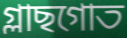
গ্লাছগোত